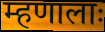
म्हणालाः